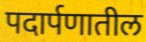
पदार्पणातील